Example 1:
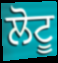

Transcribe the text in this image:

ਲੋਟੂ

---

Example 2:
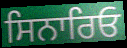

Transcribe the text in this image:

ਸਿਨਾਰਿਓ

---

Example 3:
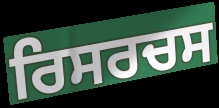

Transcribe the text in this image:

ਰਿਸਰਚਸ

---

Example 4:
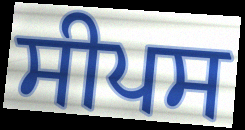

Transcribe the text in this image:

ਸੀਪਸ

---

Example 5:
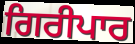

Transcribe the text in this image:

ਗਿਰੀਪਾਰ